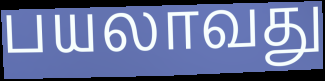
பயலாவது